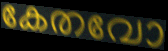
കേതവോ